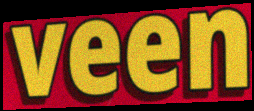
veen